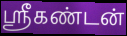
ஸ்ரீகண்டன்